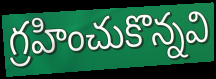
గ్రహించుకొన్నవి